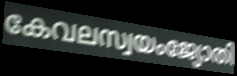
കേവലസ്വയംജ്യോതി